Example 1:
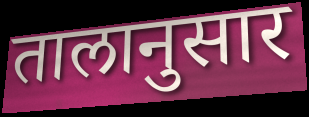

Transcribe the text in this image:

तालानुसार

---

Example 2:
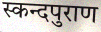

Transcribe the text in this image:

स्कन्दपुराण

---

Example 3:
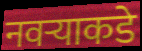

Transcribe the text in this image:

नवऱ्याकडे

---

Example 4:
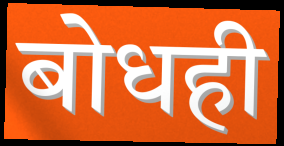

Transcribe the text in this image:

बोधही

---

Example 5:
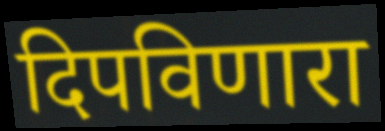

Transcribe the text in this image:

दिपविणारा